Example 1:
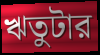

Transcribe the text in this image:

ঋতুটার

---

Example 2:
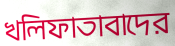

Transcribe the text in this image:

খলিফাতাবাদের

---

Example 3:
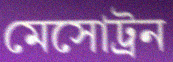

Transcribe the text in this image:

মেসোট্রন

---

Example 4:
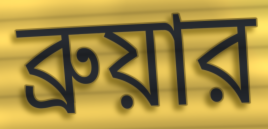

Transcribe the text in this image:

ব্রুয়ার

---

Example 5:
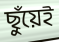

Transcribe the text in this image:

ছুঁয়েই